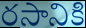
రసానికి